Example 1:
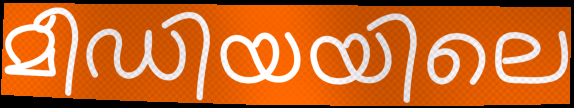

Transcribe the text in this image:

മീഡിയയിലെ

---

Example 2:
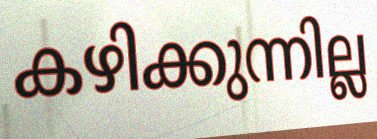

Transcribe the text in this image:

കഴിക്കുന്നില്ല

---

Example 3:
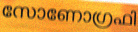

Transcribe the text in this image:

സോണോഗ്രഫി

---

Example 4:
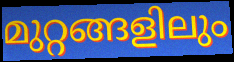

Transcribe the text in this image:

മുറ്റങ്ങളിലും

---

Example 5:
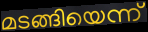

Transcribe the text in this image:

മടങ്ങിയെന്ന്